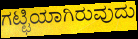
ಗಟ್ಟಿಯಾಗಿರುವುದು